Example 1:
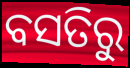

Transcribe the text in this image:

ବସତିରୁ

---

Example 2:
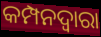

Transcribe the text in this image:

କମ୍ପନଦ୍ୱାରା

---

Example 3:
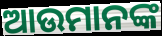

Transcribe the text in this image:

ଆଉମାନଙ୍କ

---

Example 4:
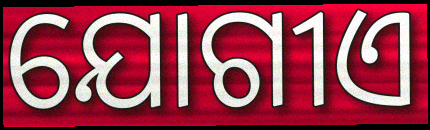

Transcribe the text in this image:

ଯୋଗୀଏ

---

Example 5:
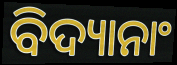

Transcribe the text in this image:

ବିଦ୍ୟାନାଂ